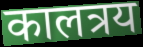
कालत्रय